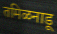
तमिळनाडू